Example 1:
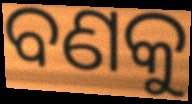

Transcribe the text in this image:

ବଣକୁ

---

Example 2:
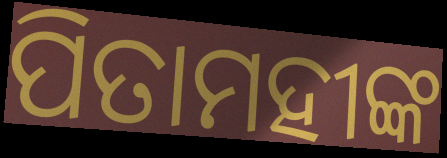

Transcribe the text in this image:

ପିତାମହୀଙ୍କ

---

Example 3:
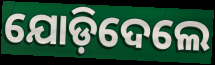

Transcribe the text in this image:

ଯୋଡ଼ିଦେଲେ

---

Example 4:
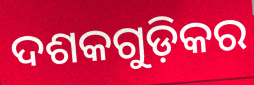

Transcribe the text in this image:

ଦଶକଗୁଡ଼ିକର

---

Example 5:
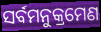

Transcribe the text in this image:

ସର୍ବମନୁକ୍ରମେଣ